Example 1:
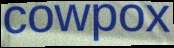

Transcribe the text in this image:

cowpox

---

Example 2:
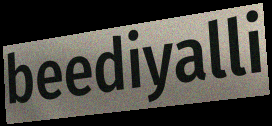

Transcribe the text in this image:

beediyalli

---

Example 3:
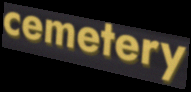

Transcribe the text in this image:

cemetery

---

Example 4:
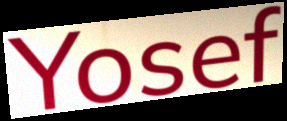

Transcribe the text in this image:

Yosef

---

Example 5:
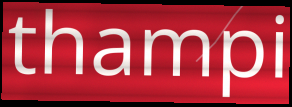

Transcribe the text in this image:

thampi